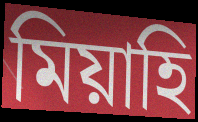
মিয়াহি